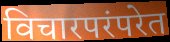
विचारपरंपरेत